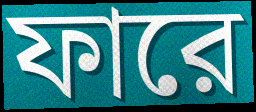
ফারে